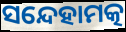
ସନ୍ଦେହାମତ୍କ